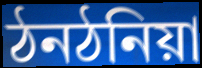
ঠনঠনিয়া